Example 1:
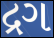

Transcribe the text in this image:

દ્રગ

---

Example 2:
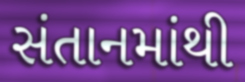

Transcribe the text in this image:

સંતાનમાંથી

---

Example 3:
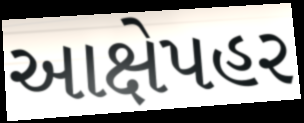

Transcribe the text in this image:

આક્ષેપહર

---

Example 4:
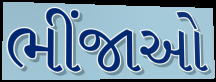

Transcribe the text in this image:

ભીંજાઓ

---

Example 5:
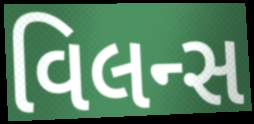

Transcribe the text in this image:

વિલન્સ